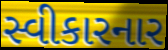
સ્વીકારનાર